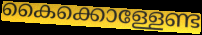
കൈക്കൊള്ളേണ്ട